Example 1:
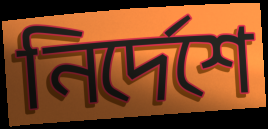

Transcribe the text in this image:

নিৰ্দেশে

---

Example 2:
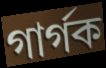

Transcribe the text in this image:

গাৰ্গক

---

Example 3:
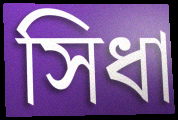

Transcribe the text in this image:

সিধা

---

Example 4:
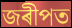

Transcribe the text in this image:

জৰীপত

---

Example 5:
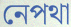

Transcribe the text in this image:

নেপথা